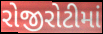
રોજીરોટીમાં